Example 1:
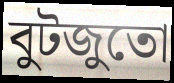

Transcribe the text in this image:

বুটজুতো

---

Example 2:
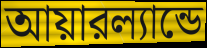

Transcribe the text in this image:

আয়ারল্যান্ডে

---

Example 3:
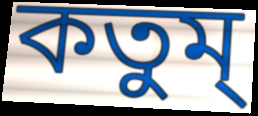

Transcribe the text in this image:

কতুম্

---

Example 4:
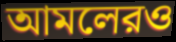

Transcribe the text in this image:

আমলেরও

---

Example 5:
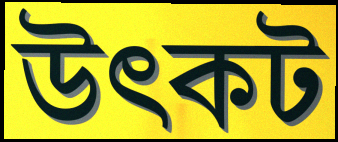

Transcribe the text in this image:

উৎকট